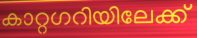
കാറ്റഗറിയിലേക്ക്